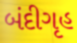
બંદીગૃહ